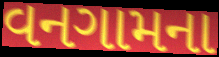
વનગામના